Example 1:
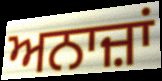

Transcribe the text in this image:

ਅਨਾਜ਼ਾਂ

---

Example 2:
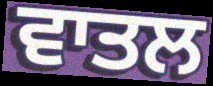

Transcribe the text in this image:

ਵਾਤਲ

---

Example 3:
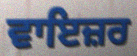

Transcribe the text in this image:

ਵਾਇਜ਼ਰ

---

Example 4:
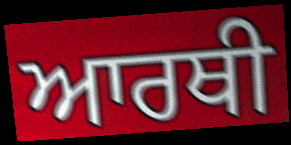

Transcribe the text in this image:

ਆਰਥੀ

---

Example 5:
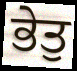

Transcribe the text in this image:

ਭੇਤੁ